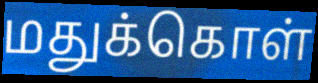
மதுக்கொள்